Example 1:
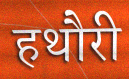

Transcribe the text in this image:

हथौरी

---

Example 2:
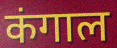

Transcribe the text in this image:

कंगाल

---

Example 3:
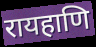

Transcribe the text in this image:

रायहाणि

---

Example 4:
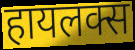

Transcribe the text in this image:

हायलक्स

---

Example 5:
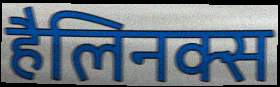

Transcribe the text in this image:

हैलिनक्स